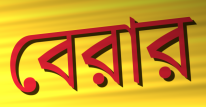
বেরার